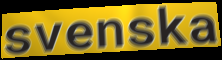
svenska